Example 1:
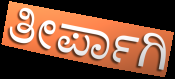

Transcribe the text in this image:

ತೀರ್ಪಾಗಿ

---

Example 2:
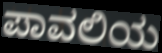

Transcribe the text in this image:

ಪಾವಲಿಯ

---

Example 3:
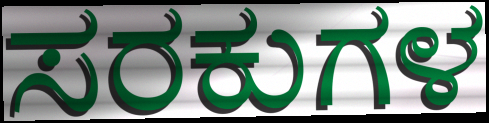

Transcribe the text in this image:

ಸರಕುಗಳ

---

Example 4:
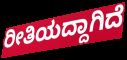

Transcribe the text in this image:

ರೀತಿಯದ್ದಾಗಿದೆ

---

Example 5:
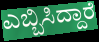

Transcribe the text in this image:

ಎಬ್ಬಿಸಿದ್ದಾರೆ